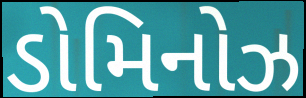
ડોમિનોઝ